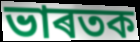
ভাৰতক